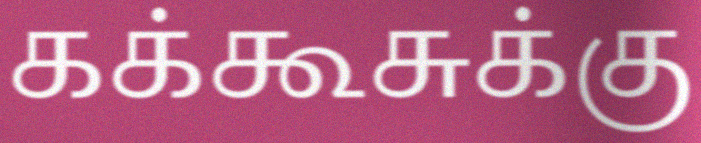
கக்கூசுக்கு